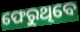
ଫେରୁଥିବେ